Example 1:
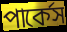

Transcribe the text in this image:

পার্কেস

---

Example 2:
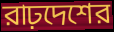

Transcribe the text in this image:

রাঢ়দেশের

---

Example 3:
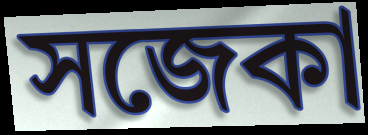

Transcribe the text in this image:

সজেকা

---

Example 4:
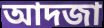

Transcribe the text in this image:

আদজা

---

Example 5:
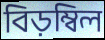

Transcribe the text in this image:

বিড়ম্বিল